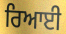
ਰਿਆਈ